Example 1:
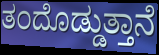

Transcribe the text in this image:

ತಂದೊಡ್ಡುತ್ತಾನೆ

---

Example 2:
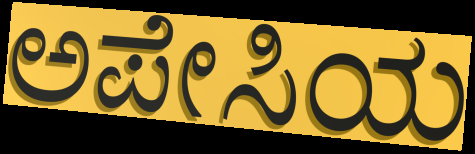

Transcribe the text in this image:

ಅಪೇಸಿಯ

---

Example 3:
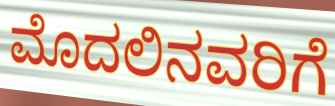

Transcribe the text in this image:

ಮೊದಲಿನವರಿಗೆ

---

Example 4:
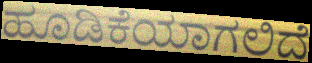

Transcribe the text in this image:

ಹೂಡಿಕೆಯಾಗಲಿದೆ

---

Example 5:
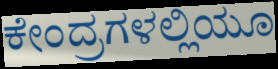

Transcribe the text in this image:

ಕೇಂದ್ರಗಳಲ್ಲಿಯೂ